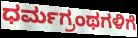
ಧರ್ಮಗ್ರಂಥಗಳಿಗೆ